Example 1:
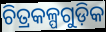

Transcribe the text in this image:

ଚିତ୍ରକଳ୍ପଗୁଡ଼ିକ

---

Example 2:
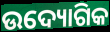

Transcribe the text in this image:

ଉଦ୍ୟୋଗିକ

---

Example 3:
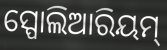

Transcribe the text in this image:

ସ୍ପୋଲିଆରିୟମ୍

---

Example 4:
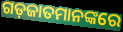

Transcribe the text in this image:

ଗଡ଼ଜାତମାନଙ୍କରେ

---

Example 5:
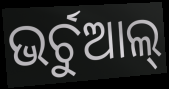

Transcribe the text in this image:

ଭର୍ଚୁଆଲ୍